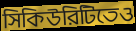
সিকিউরিটিতেও